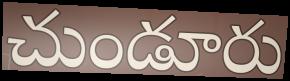
చుండూరు